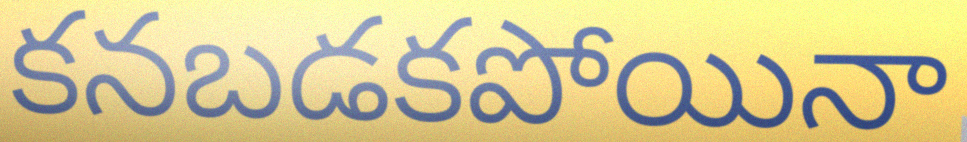
కనబడకపోయినా